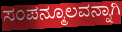
ಸಂಪನ್ಮೂಲವನ್ನಾಗಿ